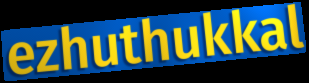
ezhuthukkal